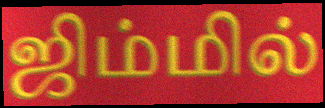
ஜிம்மில்